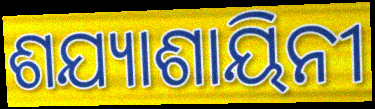
ଶଯ୍ୟାଶାୟିନୀ